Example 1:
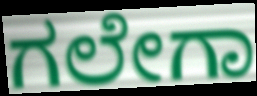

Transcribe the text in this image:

ಗಲೇಗಾ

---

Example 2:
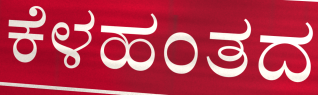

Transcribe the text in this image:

ಕೆಳಹಂತದ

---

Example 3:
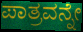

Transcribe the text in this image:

ಪಾತ್ರವನ್ನೇ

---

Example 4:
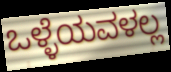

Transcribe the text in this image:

ಒಳ್ಳೆಯವಳಲ್ಲ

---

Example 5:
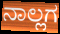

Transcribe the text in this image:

ನಾಲ್ಲಗ